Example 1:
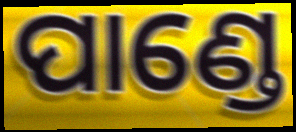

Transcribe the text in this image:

ପାଣ୍ଡେ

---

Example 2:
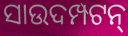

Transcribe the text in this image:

ସାଉଦମ୍ପଟନ୍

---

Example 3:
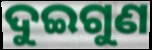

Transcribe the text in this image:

ଦୁଇଗୁଣ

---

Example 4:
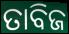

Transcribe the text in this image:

ତାବିଜ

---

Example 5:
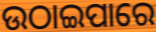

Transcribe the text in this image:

ଉଠାଇପାରେ